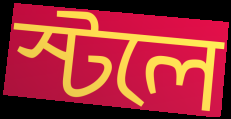
স্টলে